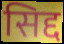
सिद्द